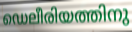
ഡെലീരിയത്തിനു